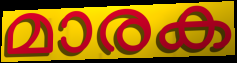
മാരക